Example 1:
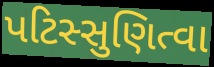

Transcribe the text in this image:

પટિસ્સુણિત્વા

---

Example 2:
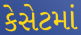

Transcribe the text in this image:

કેસેટમાં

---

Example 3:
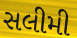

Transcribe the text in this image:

સલીમી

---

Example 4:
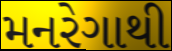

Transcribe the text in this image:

મનરેગાથી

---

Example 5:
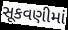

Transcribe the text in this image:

સૂકવણીમાં